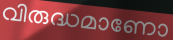
വിരുദ്ധമാണോ